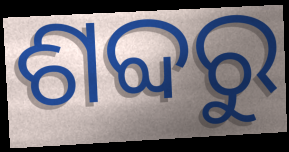
ଶବ୍ଦରୁ